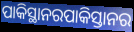
ପାକିସ୍ଥାନରପାକିସ୍ତାନର